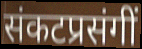
संकटप्रसंगीं